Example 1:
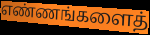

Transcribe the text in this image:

எண்ணங்களைத்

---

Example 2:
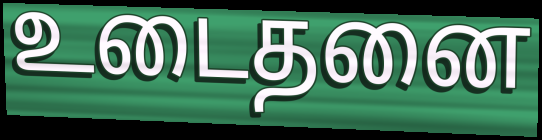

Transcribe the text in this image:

உடைதனை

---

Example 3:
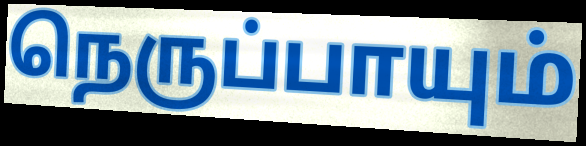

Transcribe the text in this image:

நெருப்பாயும்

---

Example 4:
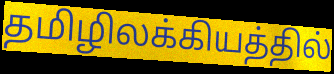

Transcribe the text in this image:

தமிழிலக்கியத்தில்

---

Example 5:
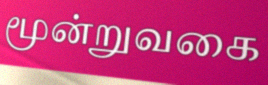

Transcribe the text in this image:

மூன்றுவகை